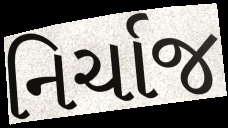
નિર્ચાજ